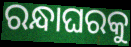
ରନ୍ଧାଘରକୁ